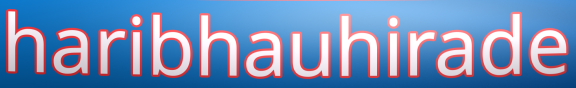
haribhauhirade